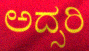
ಅದ್ಸರಿ